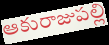
ఆకురాజుపల్లి